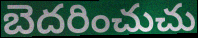
బెదరించుచు